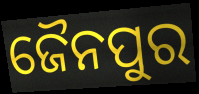
ଜୈନପୁର